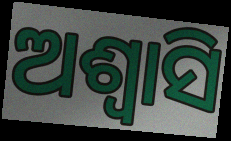
ଅଶ୍ୱାସି